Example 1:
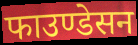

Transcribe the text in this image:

फाउण्डेसन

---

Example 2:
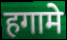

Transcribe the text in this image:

हगामे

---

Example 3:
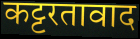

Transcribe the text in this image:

कट्टरतावाद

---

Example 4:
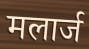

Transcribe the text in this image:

मलार्ज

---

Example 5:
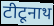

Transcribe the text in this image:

टीटूनाथ